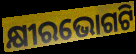
କ୍ଷୀରଭୋଗଟି